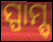
ସ୍ପାମ୍ସ୍